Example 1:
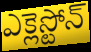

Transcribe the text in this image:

ఎక్లెస్టోన్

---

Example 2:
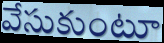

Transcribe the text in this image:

వేసుకుంటూ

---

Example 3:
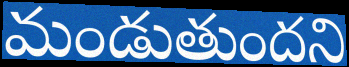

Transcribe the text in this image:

మండుతుందని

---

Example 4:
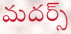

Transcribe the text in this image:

మదర్స్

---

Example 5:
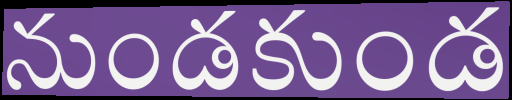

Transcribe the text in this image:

నుండకుండ